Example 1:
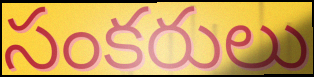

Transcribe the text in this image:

సంకరులు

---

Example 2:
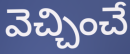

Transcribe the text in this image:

వెచ్చించే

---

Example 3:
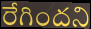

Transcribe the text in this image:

రేగిందని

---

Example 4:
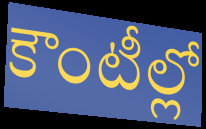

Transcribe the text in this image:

కౌంటీల్లో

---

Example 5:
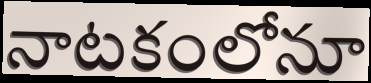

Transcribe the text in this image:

నాటకంలోనూ